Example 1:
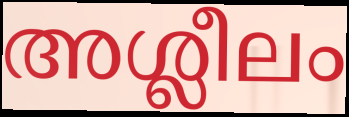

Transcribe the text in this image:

അശ്ലീലം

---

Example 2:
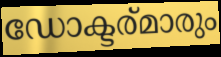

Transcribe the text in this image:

ഡോക്ടര്മാരും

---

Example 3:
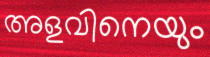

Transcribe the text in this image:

അളവിനെയും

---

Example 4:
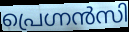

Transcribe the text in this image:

പ്രെഗ്നൻസി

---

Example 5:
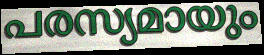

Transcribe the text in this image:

പരസ്യമായും